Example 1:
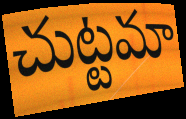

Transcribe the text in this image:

చుట్టమా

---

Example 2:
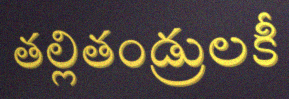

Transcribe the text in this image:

తల్లితండ్రులకీ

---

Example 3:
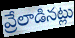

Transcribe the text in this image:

వ్రేలాడినట్లు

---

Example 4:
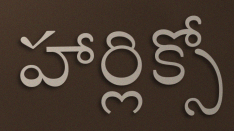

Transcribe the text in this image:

హార్లిక్సో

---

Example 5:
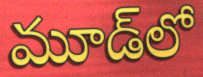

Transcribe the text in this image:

మూడ్‌లో